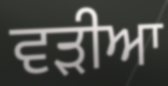
ਵੜੀਆ